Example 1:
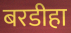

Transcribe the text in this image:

बरडीहा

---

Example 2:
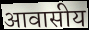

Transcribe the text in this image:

आवासीय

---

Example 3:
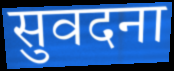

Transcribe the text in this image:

सुवदना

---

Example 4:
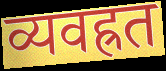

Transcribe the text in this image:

व्यवह्रत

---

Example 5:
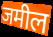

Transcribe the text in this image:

जमील